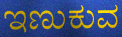
ಇಣುಕುವ